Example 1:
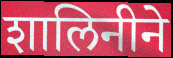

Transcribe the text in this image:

शालिनीने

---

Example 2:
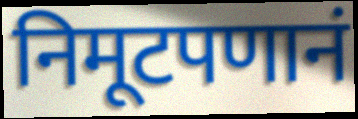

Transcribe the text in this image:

निमूटपणानं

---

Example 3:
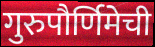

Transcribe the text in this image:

गुरुपौर्णिमेची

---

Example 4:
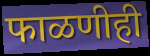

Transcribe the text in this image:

फाळणीही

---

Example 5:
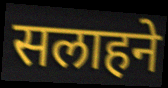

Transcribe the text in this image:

सलाहने